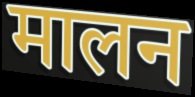
मालन